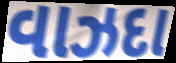
વાઝદા